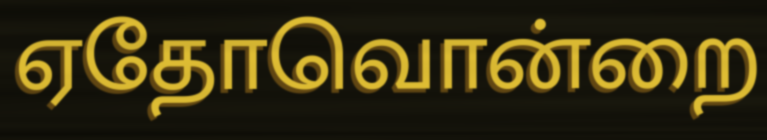
ஏதோவொன்றை